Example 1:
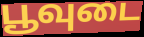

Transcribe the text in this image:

பூவுடை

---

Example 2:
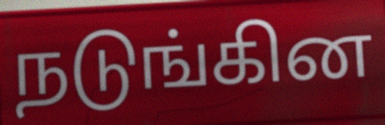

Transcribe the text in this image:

நடுங்கின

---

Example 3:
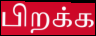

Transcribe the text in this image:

பிறக்க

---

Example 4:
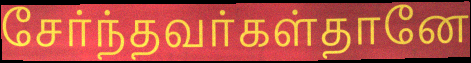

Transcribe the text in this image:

சேர்ந்தவர்கள்தானே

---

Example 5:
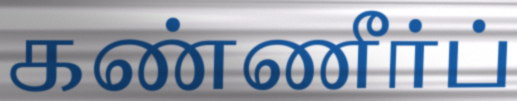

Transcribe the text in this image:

கண்ணீர்ப்